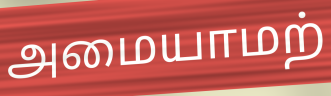
அமையாமற்